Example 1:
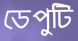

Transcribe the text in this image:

ডেপুটি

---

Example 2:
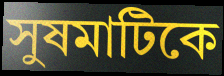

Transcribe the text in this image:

সুষমাটিকে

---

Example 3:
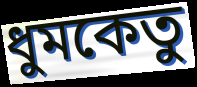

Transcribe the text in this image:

ধুমকেতু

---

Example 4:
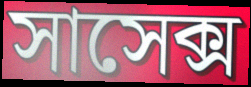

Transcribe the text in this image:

সাসেক্স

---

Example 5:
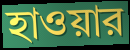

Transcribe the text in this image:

হাওয়ার